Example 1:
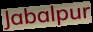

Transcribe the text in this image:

Jabalpur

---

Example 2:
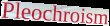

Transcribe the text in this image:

Pleochroism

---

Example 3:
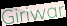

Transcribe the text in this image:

Giriwar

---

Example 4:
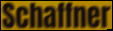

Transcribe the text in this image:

Schaffner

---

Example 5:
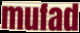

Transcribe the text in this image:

mufad